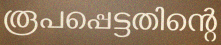
രൂപപ്പെട്ടതിന്റെ